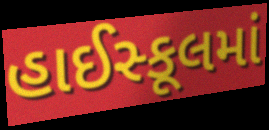
હાઈસ્કૂલમાં